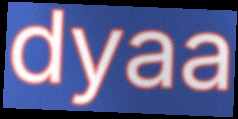
dyaa